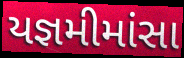
યજ્ઞમીમાંસા